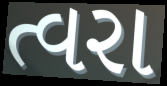
ત્વરા